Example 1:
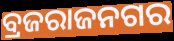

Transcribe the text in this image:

ବ୍ରଜରାଜନଗର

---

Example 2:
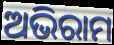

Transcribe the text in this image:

ଅଭିରାମ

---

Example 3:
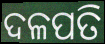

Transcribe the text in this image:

ଦଳପତି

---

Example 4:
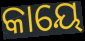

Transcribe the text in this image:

କାୟେ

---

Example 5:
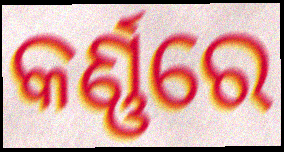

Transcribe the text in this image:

କର୍ଣ୍ଣରେ